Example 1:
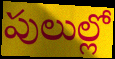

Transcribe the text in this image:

పులుల్లో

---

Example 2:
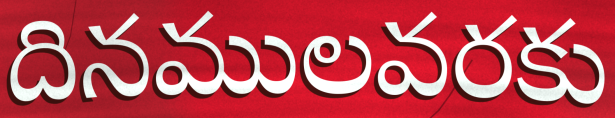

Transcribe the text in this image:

దినములవరకు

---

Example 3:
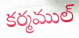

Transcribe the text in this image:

కర్మముల్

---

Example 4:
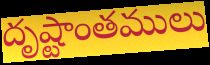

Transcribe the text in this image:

దృష్టాంతములు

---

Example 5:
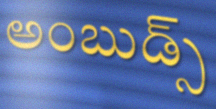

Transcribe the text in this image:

అంబుడ్స్